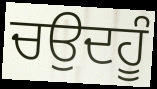
ਚਉਦਹੂੰ